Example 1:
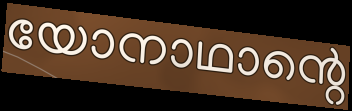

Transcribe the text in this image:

യോനാഥാന്റെ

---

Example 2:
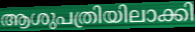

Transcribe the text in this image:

ആശുപത്രിയിലാക്കി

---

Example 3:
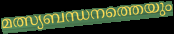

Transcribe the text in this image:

മത്സ്യബന്ധനത്തെയും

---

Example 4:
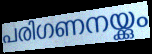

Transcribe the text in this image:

പരിഗണനയ്ക്കും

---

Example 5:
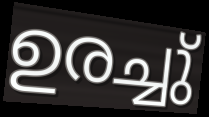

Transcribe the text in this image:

ഉരച്ചു്